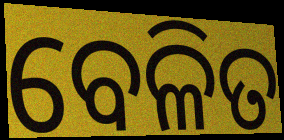
ବେଳିତ